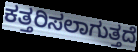
ಕತ್ತರಿಸಲಾಗುತ್ತದೆ